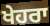
ਖੇਹਰਾ